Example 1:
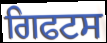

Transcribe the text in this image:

ਗਿਫਟਸ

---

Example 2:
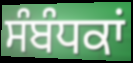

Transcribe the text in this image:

ਸੰਬੰਧਕਾਂ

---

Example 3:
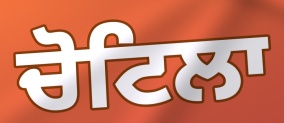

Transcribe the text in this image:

ਚੋਟਿਲਾ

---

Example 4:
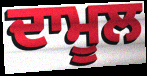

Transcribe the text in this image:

ਦਾਮੂਲ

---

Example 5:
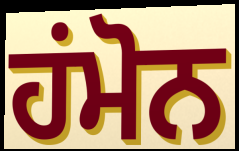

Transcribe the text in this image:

ਹਂਮੋਨ